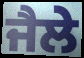
ਜੈਲੇ